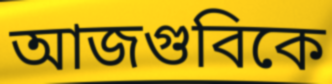
আজগুবিকে